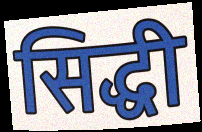
सिद्धी